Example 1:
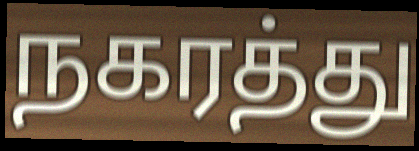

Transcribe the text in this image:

நகரத்து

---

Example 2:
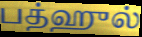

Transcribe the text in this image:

பத்ஹுல்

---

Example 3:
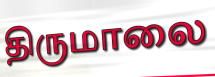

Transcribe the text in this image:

திருமாலை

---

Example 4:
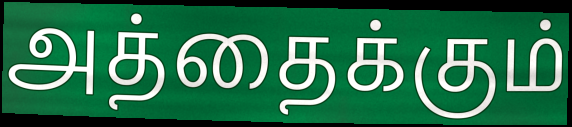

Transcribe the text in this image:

அத்தைக்கும்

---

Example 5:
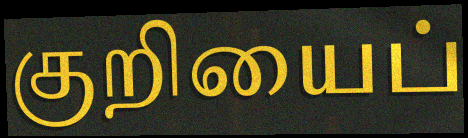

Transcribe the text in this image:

குறியைப்